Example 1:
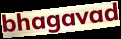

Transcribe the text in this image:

bhagavad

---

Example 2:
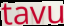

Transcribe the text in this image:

tavu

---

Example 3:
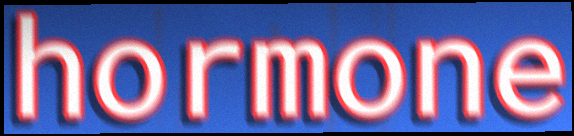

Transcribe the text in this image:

hormone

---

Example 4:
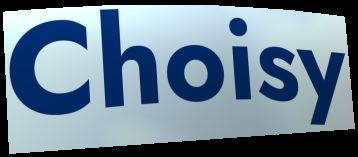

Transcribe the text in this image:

Choisy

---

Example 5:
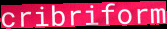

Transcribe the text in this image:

cribriform